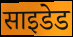
साइडेड